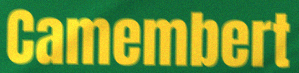
Camembert